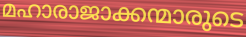
മഹാരാജാക്കന്മാരുടെ